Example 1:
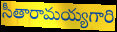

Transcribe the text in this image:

సీతారామయ్యగారి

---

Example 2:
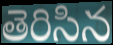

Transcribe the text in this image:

తెరిసిన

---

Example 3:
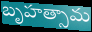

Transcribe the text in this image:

బృహత్సామ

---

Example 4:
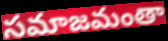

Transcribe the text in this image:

సమాజమంతా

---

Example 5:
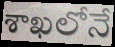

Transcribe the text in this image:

శాఖలోనే